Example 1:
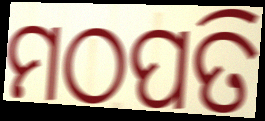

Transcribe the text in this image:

ମଠପତି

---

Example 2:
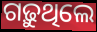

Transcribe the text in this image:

ଗଢ଼ୁଥିଲେ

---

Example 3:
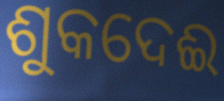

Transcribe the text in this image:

ଶୁକଦେଈ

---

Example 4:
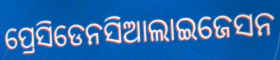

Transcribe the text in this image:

ପ୍ରେସିଡେନସିଆଲାଇଜେସନ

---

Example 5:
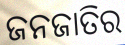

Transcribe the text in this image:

ଜନଜାତିର